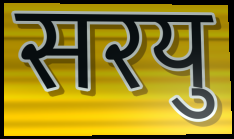
सरयु